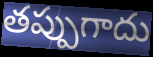
తప్పుగాదు